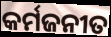
କର୍ମଜନୀତ